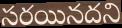
సరయినదని